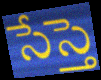
సేస్తె